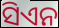
ସିଏନ